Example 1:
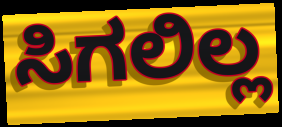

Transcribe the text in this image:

ಸಿಗಲಿಲ್ಲ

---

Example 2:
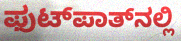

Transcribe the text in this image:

ಫುಟ್‌ಪಾತ್‌ನಲ್ಲಿ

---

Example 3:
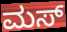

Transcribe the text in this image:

ಮಸ್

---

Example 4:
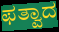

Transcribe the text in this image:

ಫತ್ವಾದ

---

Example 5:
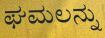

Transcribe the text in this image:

ಘಮಲನ್ನು